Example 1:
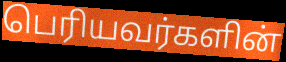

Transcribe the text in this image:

பெரியவர்களின்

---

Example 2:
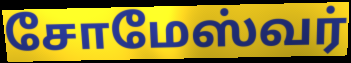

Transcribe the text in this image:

சோமேஸ்வர்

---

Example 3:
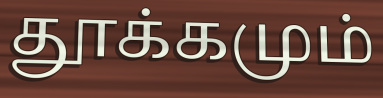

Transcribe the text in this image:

தூக்கமும்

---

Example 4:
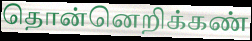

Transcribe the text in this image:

தொன்னெறிக்கண்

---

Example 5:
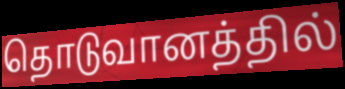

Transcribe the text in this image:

தொடுவானத்தில்